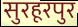
सुरहूरपुर